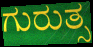
ಗುರುತ್ಸ